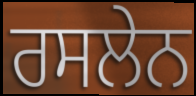
ਰਸਲੇਨ